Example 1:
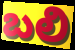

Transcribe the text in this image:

బలి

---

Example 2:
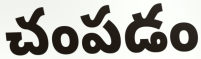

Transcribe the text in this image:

చంపడం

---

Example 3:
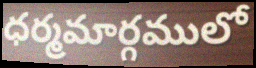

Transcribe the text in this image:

ధర్మమార్గములో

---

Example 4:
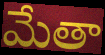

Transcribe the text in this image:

మేతా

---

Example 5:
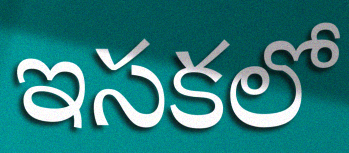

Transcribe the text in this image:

ఇసకలో